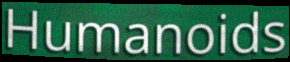
Humanoids